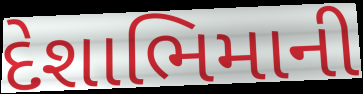
દેશાભિમાની